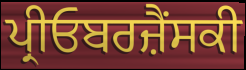
ਪ੍ਰੀਓਬਰਜ਼ੈਂਸਕੀ